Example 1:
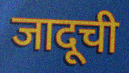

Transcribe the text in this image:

जादूची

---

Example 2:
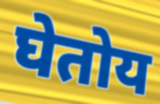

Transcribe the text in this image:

घेतोय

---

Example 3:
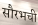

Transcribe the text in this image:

सौरभची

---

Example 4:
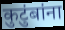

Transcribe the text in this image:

कुटुंबांना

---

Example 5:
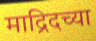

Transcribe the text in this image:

माद्रिदच्या